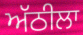
ਅੱਠੀਲਾ